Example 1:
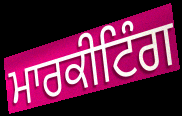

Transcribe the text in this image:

ਮਾਰਕੀਟਿੰਗ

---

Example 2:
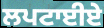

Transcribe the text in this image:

ਲਪਟਾਈਏ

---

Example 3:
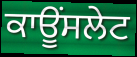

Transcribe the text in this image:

ਕਾਊਂਸਲੇਟ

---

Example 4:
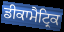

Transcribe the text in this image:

ਡੀਕਾਮੈਟ੍ਰਿਕ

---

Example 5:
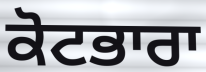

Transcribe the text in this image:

ਕੋਟਭਾਰਾ